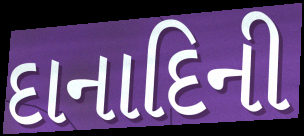
દાનાદિની